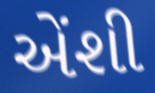
એંશી